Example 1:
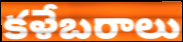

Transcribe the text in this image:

కళేబరాలు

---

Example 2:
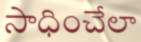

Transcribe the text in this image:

సాధించేలా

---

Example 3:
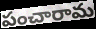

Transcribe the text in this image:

పంచారామ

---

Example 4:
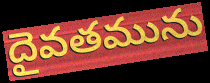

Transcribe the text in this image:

దైవతమును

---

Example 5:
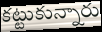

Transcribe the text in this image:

కట్టుకున్నారు